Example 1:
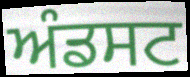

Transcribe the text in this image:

ਅੰਡਸਟ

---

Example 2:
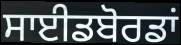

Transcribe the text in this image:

ਸਾਈਡਬੋਰਡਾਂ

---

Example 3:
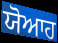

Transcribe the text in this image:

ਯੋਆਹ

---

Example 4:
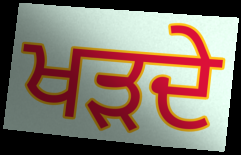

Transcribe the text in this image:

ਖੜਦੇ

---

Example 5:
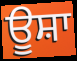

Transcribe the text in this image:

ਊਸ਼ਾ